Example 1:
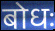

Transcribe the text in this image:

बोधः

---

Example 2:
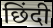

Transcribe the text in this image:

छिंदी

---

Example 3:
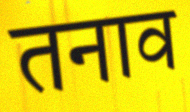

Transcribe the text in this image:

तनाव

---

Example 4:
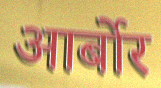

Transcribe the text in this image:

आर्बोर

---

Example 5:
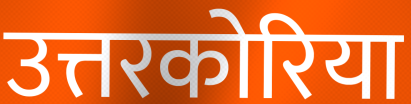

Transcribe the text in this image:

उत्तरकोरिया